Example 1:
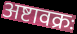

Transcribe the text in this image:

अष्टावक्रः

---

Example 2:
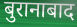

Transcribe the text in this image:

बुरानाबाद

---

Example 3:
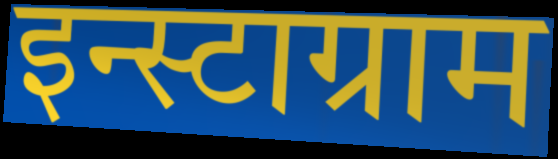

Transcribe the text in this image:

इन्स्टाग्राम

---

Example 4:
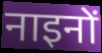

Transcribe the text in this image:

नाइनों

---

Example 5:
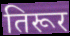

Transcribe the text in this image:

तिरूर